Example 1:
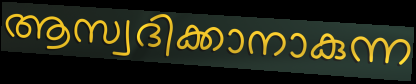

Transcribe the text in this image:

ആസ്വദിക്കാനാകുന്ന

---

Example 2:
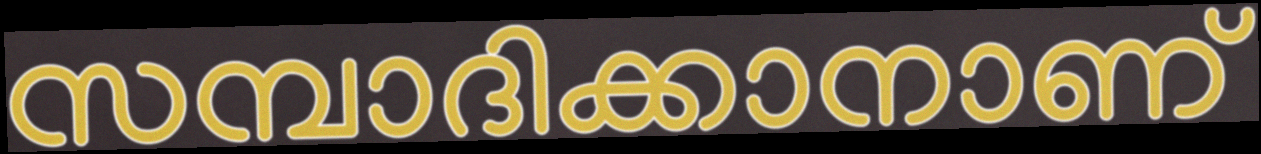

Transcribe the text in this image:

സമ്പാദിക്കാനാണ്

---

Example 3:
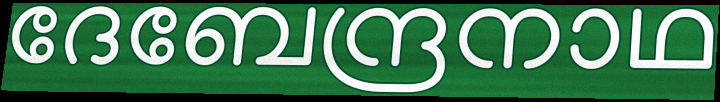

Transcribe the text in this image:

ദേബേന്ദ്രനാഥ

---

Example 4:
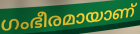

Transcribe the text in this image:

ഗംഭീരമായാണ്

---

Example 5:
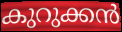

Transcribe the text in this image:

കുറുക്കൻ